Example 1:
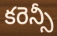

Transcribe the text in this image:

కరెన్సీ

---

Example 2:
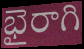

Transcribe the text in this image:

భైరాగి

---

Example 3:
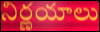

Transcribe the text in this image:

నిర్ణయాలు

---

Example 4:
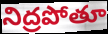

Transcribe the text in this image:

నిద్రపోతూ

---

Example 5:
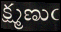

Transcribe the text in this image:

క్ష్మణుఁ